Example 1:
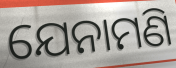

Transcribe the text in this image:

ଯେନାମଣି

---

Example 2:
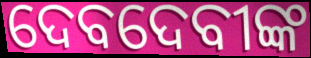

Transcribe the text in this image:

ଦେବଦେବୀଙ୍କ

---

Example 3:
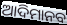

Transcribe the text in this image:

ଆଦିମାନବ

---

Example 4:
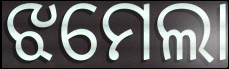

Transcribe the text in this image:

ଝମେଲା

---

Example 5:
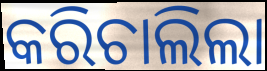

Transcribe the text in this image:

କରିଚାଲିଲା